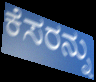
ಕೆಸರನ್ನು